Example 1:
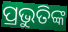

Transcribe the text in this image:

ପ୍ରଭୁତିଙ୍କ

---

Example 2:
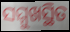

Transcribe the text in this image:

ସମ୍ମୁଖସ୍ଥିତ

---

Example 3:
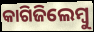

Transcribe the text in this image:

କାଗିଜିଲେମ୍ବୁ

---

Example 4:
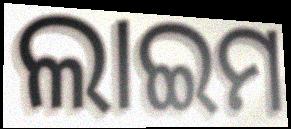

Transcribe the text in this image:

ଲାଇମ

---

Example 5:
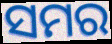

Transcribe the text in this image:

ସମର